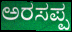
ಅರಸಪ್ಪ